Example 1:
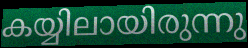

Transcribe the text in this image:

കയ്യിലായിരുന്നു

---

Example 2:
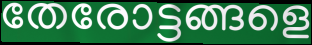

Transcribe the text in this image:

തേരോട്ടങ്ങളെ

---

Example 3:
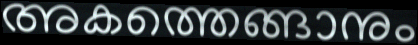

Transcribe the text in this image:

അകത്തെങ്ങാനും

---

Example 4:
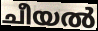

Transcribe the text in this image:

ചീയൽ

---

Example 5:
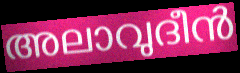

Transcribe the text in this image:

അലാവുദീൻ